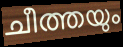
ചീത്തയും